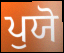
ਪੁਯੋ